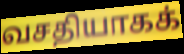
வசதியாகக்